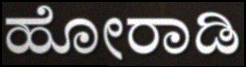
ಹೋರಾಡಿ